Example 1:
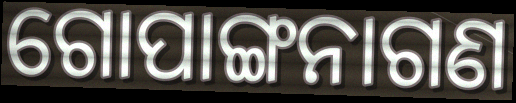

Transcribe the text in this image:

ଗୋପାଙ୍ଗନାଗଣ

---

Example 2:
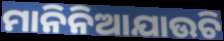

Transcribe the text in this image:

ମାନିନିଆଯାଉଚି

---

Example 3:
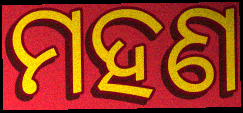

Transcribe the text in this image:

ମହଣ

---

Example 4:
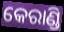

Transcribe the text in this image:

କେରାଣ୍ଡି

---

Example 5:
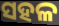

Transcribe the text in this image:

ସହଳ